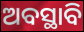
ଅବସ୍ଥାବି